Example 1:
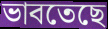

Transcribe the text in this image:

ভাবতেছে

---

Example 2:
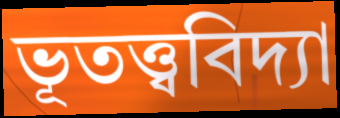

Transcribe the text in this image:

ভূতত্ত্ববিদ্যা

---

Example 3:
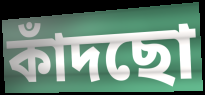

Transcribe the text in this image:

কাঁদছো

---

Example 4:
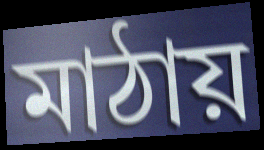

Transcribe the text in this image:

মাঠায়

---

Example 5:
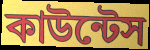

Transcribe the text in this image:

কাউন্টেস